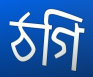
ঠগি